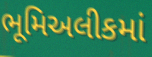
ભૂમિઅલીકમાં